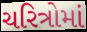
ચરિત્રોમાં